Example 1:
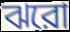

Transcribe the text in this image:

ঝরো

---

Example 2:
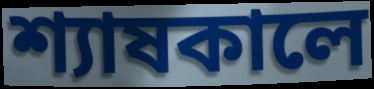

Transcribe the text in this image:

শ্যাষকালে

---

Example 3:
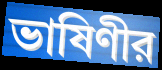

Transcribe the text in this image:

ভাষিণীর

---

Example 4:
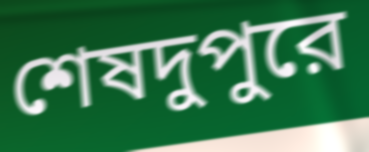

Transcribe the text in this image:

শেষদুপুরে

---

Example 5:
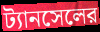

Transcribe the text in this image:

ট্যানসেলের